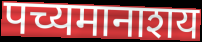
पच्यमानाशय